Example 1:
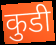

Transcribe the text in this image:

कुडी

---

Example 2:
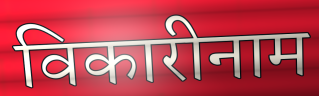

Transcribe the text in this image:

विकारीनाम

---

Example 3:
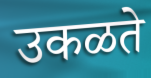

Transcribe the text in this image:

उकळते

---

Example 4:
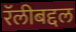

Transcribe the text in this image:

रॅलीबद्दल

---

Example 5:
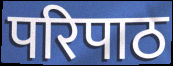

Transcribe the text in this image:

परिपाठ